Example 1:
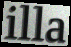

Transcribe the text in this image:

illa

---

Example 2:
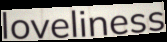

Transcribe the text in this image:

loveliness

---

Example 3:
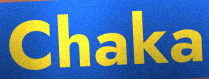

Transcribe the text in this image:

Chaka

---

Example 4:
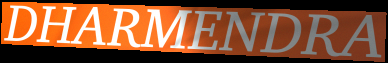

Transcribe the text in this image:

DHARMENDRA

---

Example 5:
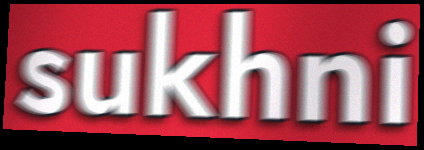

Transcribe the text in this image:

sukhni